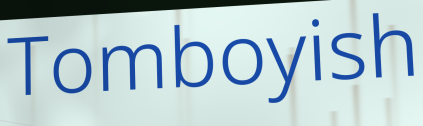
Tomboyish